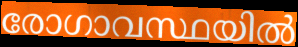
രോഗാവസ്ഥയിൽ